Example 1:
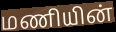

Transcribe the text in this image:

மணியின்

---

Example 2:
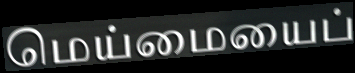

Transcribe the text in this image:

மெய்மையைப்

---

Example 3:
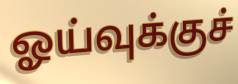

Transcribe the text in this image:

ஓய்வுக்குச்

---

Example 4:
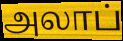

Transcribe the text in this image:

அலாப்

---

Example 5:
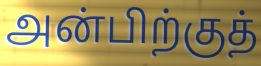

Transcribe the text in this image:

அன்பிற்குத்